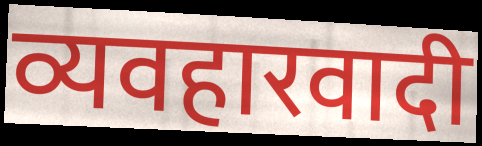
व्यवहारवादी